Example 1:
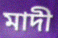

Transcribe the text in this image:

মাদী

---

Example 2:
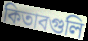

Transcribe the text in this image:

কিতাবগুলি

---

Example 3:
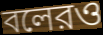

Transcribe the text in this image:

বলেরও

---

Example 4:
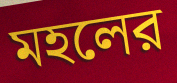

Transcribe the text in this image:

মহলের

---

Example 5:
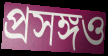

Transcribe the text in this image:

প্রসঙ্গও